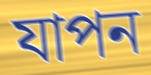
যাপন